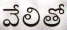
వేలితో